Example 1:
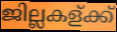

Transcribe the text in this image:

ജില്ലകള്ക്ക്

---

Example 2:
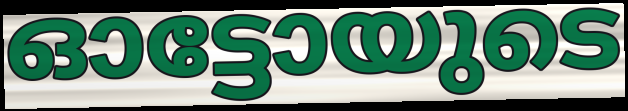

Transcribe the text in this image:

ഓട്ടോയുടെ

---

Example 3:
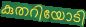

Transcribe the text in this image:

കുതറിയോടി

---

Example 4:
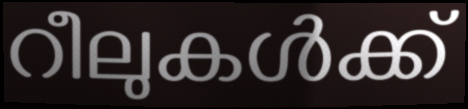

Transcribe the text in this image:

റീലുകൾക്ക്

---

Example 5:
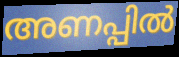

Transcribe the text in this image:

അണപ്പിൽ